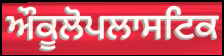
ਔਕੂਲੋਪਲਾਸਟਿਕ